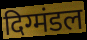
दिग्मंडल